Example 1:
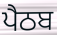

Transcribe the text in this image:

ਪੈਠਬ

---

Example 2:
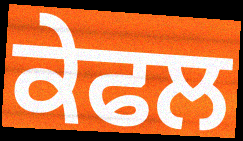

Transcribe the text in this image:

ਕੇਫਲ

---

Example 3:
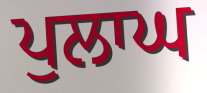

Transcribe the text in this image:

ਪੁਲਾਘ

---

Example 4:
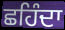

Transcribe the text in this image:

ਛਹਿੰਦਾ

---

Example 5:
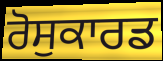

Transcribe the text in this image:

ਰੋਸੁਕਾਰਡ